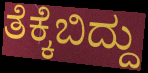
ತೆಕ್ಕೆಬಿದ್ದು